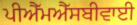
ਪੀਐੱਮਐੱਸਬੀਵਾਈ